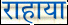
राहाया